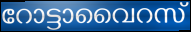
റോട്ടാവൈറസ്